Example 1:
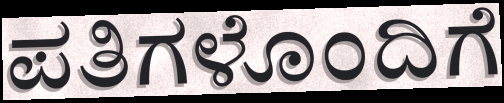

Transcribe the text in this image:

ಪತಿಗಳೊಂದಿಗೆ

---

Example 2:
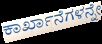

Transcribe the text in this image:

ಕಾರ್ಖಾನೆಗಳನ್ನೇ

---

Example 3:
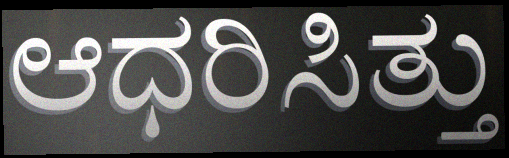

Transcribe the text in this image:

ಆಧರಿಸಿತ್ತು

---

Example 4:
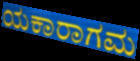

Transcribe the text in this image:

ಯಕಾರಾಗಮ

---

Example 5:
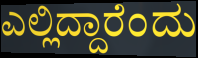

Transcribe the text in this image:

ಎಲ್ಲಿದ್ದಾರೆಂದು